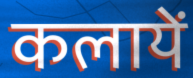
कलायें